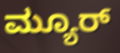
ಮ್ಯೂರ್